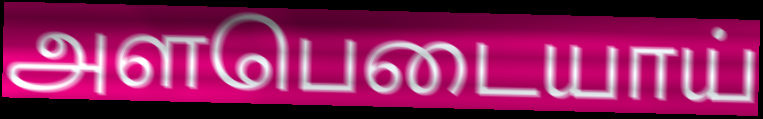
அளபெடையாய்